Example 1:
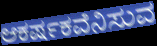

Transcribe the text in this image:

ಆಕರ್ಷಕವೆನಿಸುವ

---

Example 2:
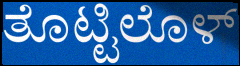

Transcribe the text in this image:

ತೊಟ್ಟಿಲೊಳ್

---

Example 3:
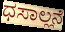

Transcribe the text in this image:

ಧಸಾಲ್ಲನೆ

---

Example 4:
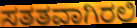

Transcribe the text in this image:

ಸತತವಾಗಿರಲಿ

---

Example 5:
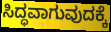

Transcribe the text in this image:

ಸಿದ್ಧವಾಗುವುದಕ್ಕೆ